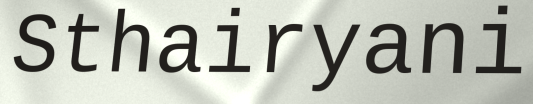
Sthairyani